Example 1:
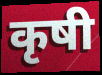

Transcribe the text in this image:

कृषी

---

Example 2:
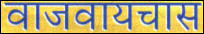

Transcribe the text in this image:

वाजवायचास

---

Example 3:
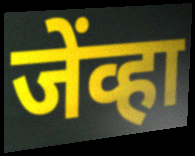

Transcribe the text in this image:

जेंव्हा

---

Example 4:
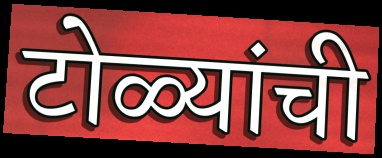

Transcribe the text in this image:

टोळ्यांची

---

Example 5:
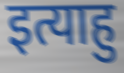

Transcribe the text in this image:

इत्याहु